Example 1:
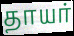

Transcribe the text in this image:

தாயர்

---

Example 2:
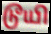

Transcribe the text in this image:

டூயி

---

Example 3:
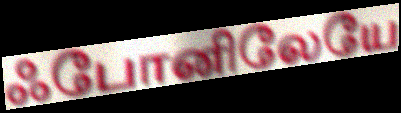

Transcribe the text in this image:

ஃபோனிலேயே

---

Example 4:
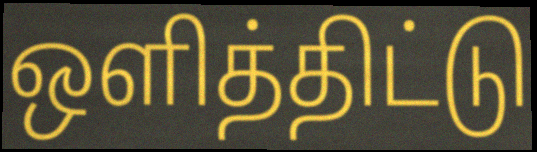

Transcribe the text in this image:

ஒளித்திட்டு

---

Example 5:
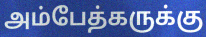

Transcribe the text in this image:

அம்பேத்கருக்கு